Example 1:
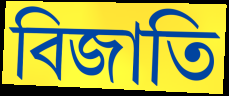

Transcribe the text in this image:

বিজাতি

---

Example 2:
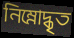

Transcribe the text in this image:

নিম্নোদ্ধৃত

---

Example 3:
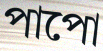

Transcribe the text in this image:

পাপো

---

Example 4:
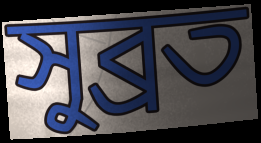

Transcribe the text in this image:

সুব্রত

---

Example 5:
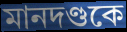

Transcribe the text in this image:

মানদণ্ডকে